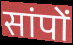
सांपों